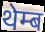
थेम्ब